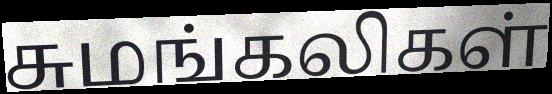
சுமங்கலிகள்